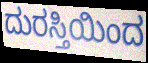
ದುರಸ್ತಿಯಿಂದ